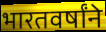
भारतवर्षांने